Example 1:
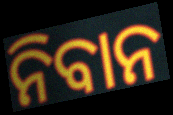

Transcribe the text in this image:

ନିବାନ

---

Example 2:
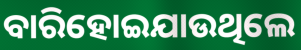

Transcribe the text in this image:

ବାରିହୋଇଯାଉଥିଲେ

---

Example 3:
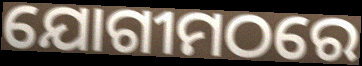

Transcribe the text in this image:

ଯୋଗୀମଠରେ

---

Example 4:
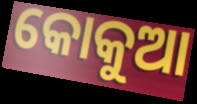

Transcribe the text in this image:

କୋକୁଆ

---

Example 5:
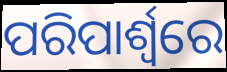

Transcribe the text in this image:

ପରିପାର୍ଶ୍ୱରେ